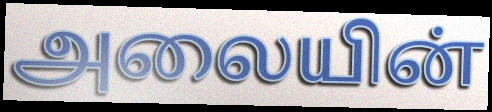
அலையின்